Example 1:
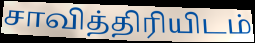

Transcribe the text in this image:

சாவித்திரியிடம்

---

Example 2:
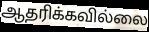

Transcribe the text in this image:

ஆதரிக்கவில்லை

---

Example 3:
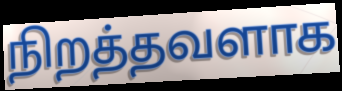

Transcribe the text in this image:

நிறத்தவளாக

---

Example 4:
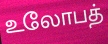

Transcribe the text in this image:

உலோபத்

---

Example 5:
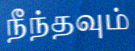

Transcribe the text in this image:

நீந்தவும்